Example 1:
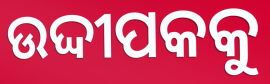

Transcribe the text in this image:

ଉଦ୍ଦୀପକକୁ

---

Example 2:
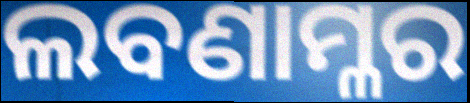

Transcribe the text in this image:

ଲବଣାମ୍ଳର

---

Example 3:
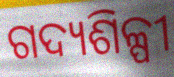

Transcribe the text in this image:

ଗଦ୍ୟଶିଳ୍ପୀ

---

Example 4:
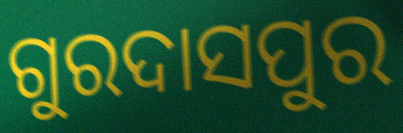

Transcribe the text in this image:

ଗୁରଦାସପୁର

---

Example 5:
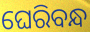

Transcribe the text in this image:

ଘେରିବନ୍ଧ